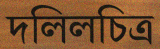
দলিলচিত্র